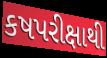
કષપરીક્ષાથી